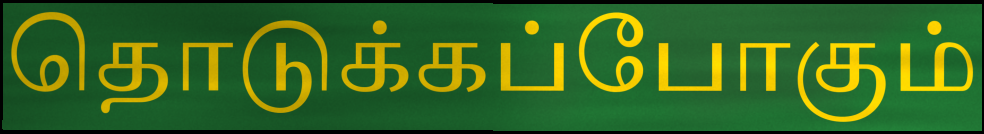
தொடுக்கப்போகும்